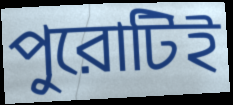
পুরোটিই